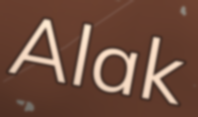
Alak